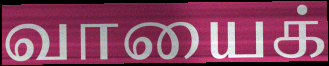
வாயைக்